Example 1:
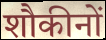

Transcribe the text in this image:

शौकीनों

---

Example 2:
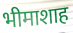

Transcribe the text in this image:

भीमाशाह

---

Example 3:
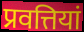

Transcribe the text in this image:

प्रवत्तियां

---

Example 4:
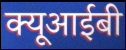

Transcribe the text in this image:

क्यूआईबी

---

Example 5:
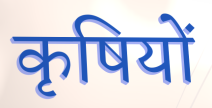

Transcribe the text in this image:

कृषियों